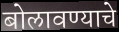
बोलावण्याचे